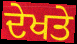
ਦੇਖਤੇ